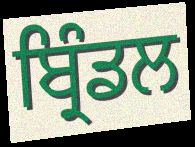
ਬ੍ਰਿੰਡਲ